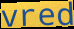
vred